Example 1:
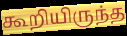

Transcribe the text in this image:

கூறியிருந்த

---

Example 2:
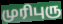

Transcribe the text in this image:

முரிபுரு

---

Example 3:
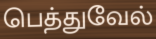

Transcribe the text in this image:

பெத்துவேல்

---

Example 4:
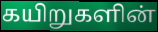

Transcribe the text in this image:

கயிறுகளின்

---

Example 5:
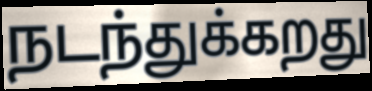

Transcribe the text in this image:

நடந்துக்கறது